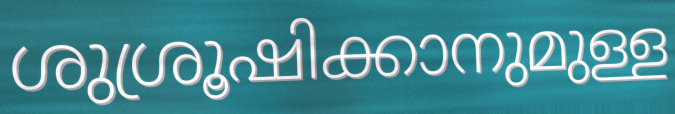
ശുശ്രൂഷിക്കാനുമുള്ള